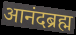
आनंदब्रह्म